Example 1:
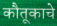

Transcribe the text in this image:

कौतूकाचे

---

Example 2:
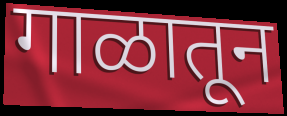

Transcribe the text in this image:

गाळातून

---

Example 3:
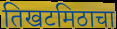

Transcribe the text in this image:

तिखटमिठाचा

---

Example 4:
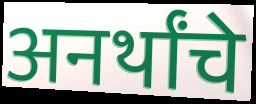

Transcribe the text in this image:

अनर्थांचे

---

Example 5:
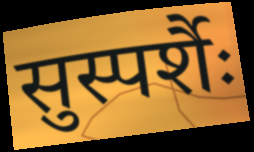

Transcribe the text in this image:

सुस्पर्शैः